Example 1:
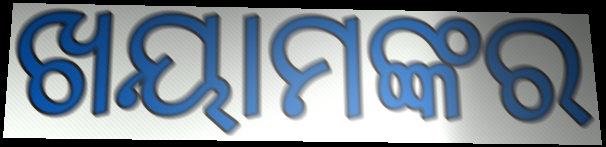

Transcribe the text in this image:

ଖୟାମଙ୍କର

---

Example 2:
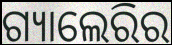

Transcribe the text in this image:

ଗ୍ୟାଲେରିର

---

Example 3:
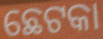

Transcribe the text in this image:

ଛେଟକା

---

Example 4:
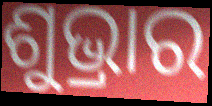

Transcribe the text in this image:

ଶୁଭ୍ରାର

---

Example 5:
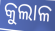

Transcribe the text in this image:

କୁଲାଳ